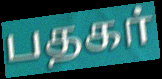
பதகர்